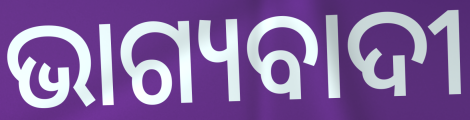
ଭାଗ୍ୟବାଦୀ